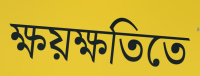
ক্ষয়ক্ষতিতে